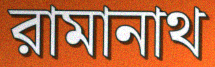
রামানাথ